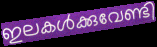
ഇലകൾക്കുവേണ്ടി